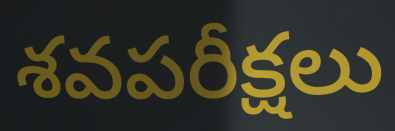
శవపరీక్షలు